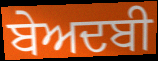
ਬੇਅਦਬੀ